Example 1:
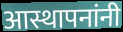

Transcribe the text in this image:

आस्थापनांनी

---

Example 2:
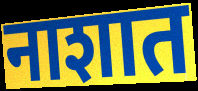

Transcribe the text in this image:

नाशात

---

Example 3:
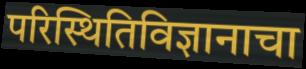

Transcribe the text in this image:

परिस्थितिविज्ञानाचा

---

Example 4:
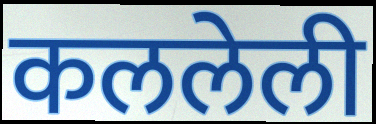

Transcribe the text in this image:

कललेली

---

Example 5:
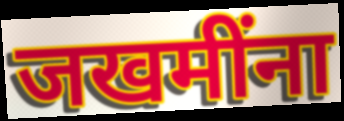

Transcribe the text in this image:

जखमींना